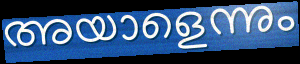
അയാളെന്നും